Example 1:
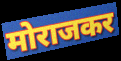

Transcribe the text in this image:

मोराजकर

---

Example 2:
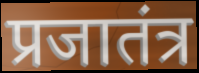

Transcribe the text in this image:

प्रजातंत्र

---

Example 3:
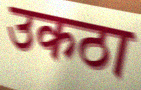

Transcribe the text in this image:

उकठा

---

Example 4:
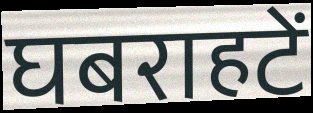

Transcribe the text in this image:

घबराहटें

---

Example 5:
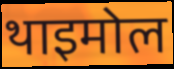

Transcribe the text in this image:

थाइमोल